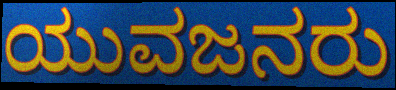
ಯುವಜನರು